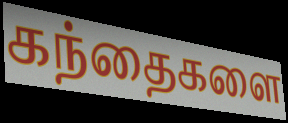
கந்தைகளை